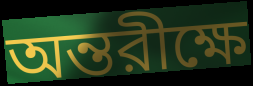
অন্তরীক্ষে